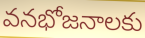
వనభోజనాలకు